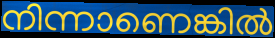
നിന്നാണെങ്കിൽ